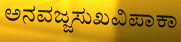
ಅನವಜ್ಜಸುಖವಿಪಾಕಾ